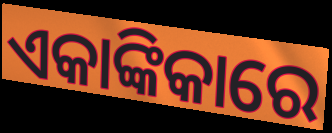
ଏକାଙ୍କିକାରେ